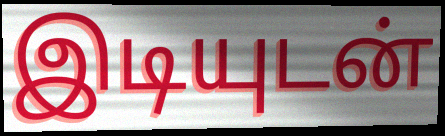
இடியுடன்